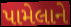
પામેલાને